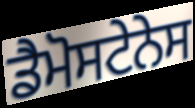
ਡੈਮੋਸਟੇਨੇਸ